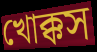
খোক্কস